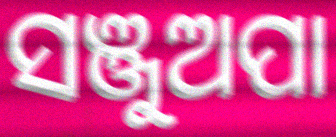
ସଞ୍ଜୁଅପା